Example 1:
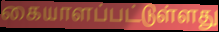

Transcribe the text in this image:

கையாளப்பட்டுள்ளது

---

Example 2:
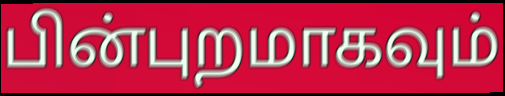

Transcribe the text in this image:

பின்புறமாகவும்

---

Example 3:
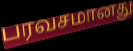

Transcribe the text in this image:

பரவசமானது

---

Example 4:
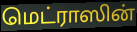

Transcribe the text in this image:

மெட்ராஸின்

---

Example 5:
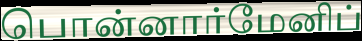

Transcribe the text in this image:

பொன்னார்மேனிப்